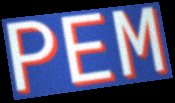
PEM